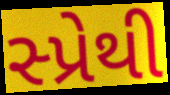
સ્પ્રેથી